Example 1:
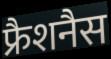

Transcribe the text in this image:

फ्रैशनैस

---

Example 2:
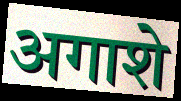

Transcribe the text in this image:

अगाशे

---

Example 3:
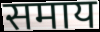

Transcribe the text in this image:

समाय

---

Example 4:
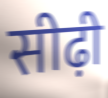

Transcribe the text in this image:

सीढ़ी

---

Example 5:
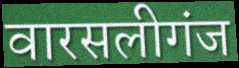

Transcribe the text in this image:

वारसलीगंज